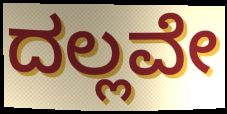
ದಲ್ಲವೇ